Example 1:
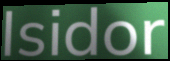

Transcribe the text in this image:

Isidor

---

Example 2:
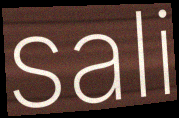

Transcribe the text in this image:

sali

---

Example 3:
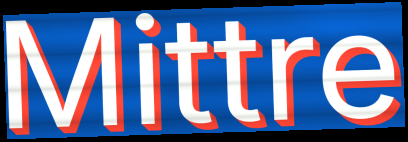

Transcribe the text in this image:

Mittre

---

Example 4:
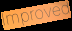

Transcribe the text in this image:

Improved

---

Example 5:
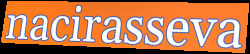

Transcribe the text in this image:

nacirasseva